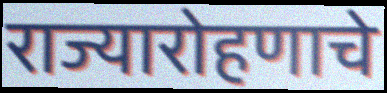
राज्यारोहणाचे